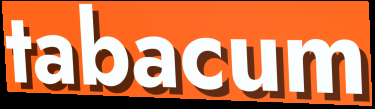
tabacum